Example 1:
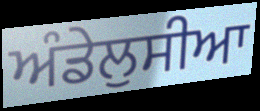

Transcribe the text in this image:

ਅੰਡੇਲੁਸੀਆ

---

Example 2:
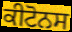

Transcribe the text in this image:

ਕੀਟੋਨਸ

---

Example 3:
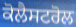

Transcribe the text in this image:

ਕੋਲੈਸਟਰੋਲ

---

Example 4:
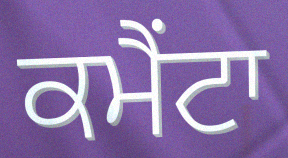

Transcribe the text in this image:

ਕਮੈਂਟਾ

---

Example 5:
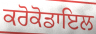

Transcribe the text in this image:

ਕਰੋਕੋਡਾਇਲ